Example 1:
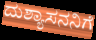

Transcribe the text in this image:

ದುಶ್ಯಾಸನನಿಗೆ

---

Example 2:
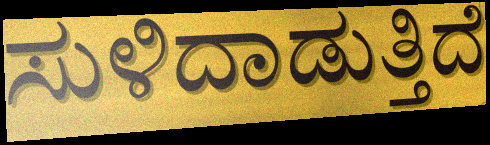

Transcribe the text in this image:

ಸುಳಿದಾಡುತ್ತಿದೆ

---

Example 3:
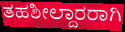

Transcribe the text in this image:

ತಹಶೀಲ್ದಾರರಾಗಿ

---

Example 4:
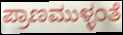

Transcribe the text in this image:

ಪ್ರಾಣಮುಳ್ಳಂತೆ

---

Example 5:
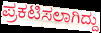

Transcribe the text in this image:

ಪ್ರಕಟಿಸಲಾಗಿದ್ದು